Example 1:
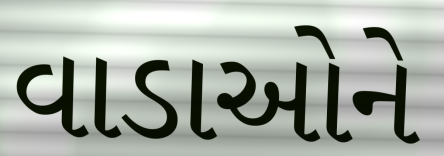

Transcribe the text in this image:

વાડાઓને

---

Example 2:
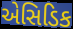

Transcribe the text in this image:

એસિડિક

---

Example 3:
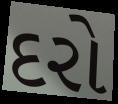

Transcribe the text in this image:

દરો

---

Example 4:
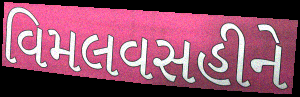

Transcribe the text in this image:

વિમલવસહીને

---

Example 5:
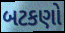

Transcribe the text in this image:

બટકણો